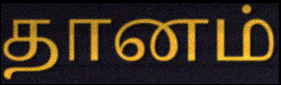
தானம்